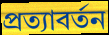
প্রত্যাবর্তন